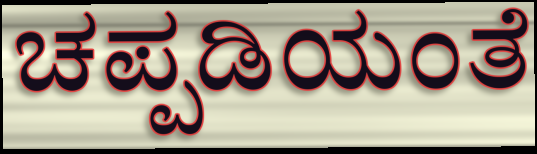
ಚಪ್ಪಡಿಯಂತೆ